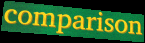
comparison